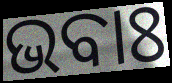
ଭବାଃ